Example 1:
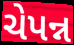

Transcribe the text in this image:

ચેપન્ન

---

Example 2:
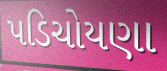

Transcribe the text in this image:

પડિચોયણા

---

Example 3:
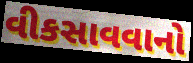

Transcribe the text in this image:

વીકસાવવાનો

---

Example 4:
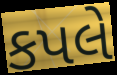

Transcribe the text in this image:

કપલે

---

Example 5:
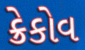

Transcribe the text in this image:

ક્રેકોવ